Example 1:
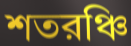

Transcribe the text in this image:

শতরঞ্চি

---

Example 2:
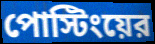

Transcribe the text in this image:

পোস্টিংয়ের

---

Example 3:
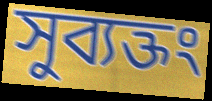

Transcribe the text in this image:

সুব্যক্তং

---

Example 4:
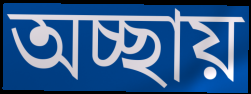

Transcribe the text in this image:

অচ্ছায়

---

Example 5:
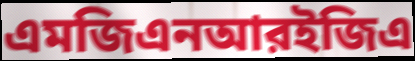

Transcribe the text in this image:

এমজিএনআরইজিএ